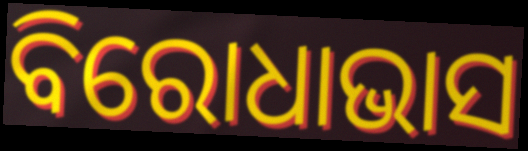
ବିରୋଧାଭାସ